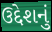
ઉદ્દેશનું